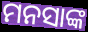
ମନସାଙ୍କ